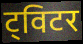
ट्‌विटर